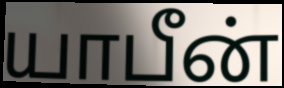
யாபீன்